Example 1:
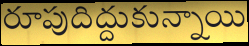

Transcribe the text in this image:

రూపుదిద్దుకున్నాయి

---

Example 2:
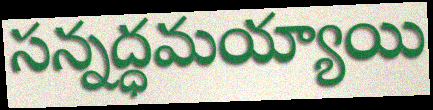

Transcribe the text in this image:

సన్నద్ధమయ్యాయి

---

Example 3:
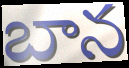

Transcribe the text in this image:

బాన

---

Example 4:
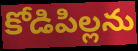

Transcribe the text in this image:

కోడిపిల్లను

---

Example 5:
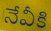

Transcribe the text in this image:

నేవీకి